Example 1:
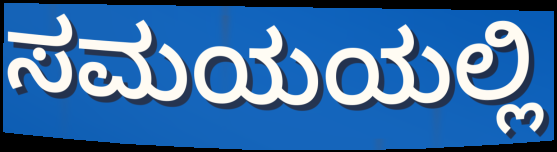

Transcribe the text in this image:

ಸಮಯಯಲ್ಲಿ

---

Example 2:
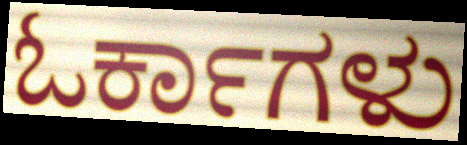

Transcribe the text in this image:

ಓರ್ಕಾಗಳು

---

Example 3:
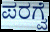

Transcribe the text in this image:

ಪರಗ್ವೆ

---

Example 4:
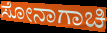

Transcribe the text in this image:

ಸೋನಾಗಾಚಿ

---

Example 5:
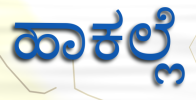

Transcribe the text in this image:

ಹಾಕಲ್ಲೆ